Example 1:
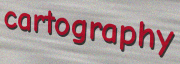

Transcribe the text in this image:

cartography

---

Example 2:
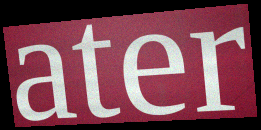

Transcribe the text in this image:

ater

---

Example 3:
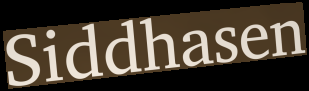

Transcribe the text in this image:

Siddhasen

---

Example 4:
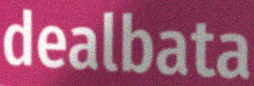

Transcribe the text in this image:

dealbata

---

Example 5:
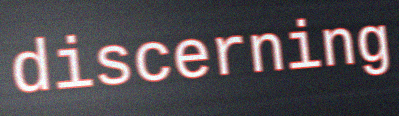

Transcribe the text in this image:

discerning